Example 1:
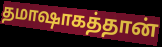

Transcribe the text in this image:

தமாஷாகத்தான்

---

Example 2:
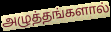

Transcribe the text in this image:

அழுத்தங்களால்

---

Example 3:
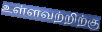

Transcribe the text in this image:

உள்ளவற்றிற்கு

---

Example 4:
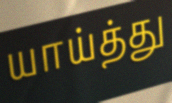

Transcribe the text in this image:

யாய்த்து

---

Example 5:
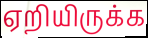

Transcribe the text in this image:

ஏறியிருக்க